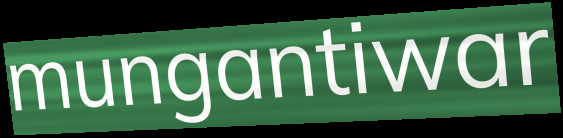
mungantiwar